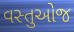
વસ્તુઓજ